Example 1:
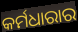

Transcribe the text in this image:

କର୍ମଧାରାର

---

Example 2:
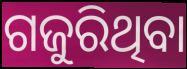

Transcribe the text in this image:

ଗଜୁରିଥିବା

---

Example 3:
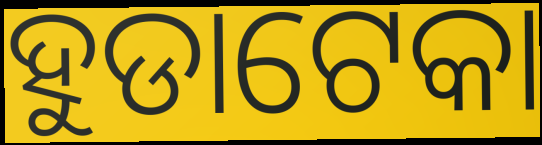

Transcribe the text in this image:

ହୁଡାଟେକା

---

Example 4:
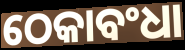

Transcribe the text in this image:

ଠେକାବଂଧା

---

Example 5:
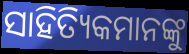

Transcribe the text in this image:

ସାହିତ୍ୟିକମାନଙ୍କୁ